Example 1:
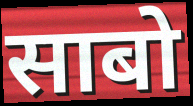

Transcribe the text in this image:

साबो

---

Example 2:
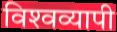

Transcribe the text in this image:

विश्‍वव्यापी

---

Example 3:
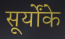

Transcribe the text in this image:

सूर्योंके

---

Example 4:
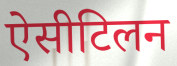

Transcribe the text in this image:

ऐसीटिलन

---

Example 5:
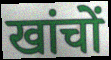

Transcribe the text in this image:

खांचों